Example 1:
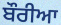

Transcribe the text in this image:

ਬੌਰੀਆ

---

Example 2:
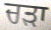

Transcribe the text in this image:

ਚੜਾ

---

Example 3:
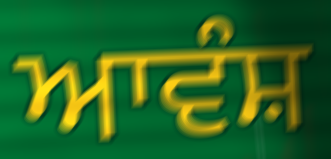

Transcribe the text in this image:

ਆਵੰਸ਼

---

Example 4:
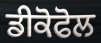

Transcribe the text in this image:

ਡੀਕੋਫੋਲ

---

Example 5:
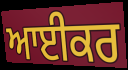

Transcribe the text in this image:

ਆਈਕਰ